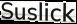
Suslick